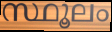
സ്ഥൂലം